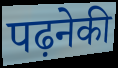
पढ़नेकी